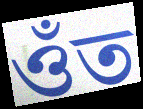
ওঁত